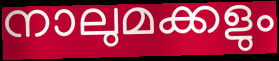
നാലുമക്കളും